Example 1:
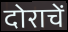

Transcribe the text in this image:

दोराचें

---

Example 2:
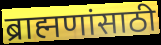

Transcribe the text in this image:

ब्राह्मणांसाठी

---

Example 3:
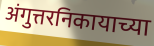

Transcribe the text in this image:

अंगुत्तरनिकायाच्या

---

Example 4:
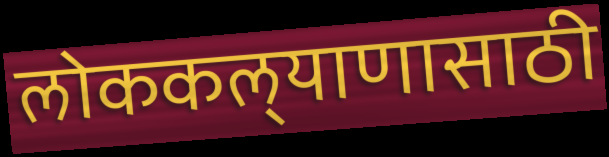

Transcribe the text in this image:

लोककल्याणासाठी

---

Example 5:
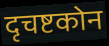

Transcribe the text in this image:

दृचष्टकोन